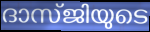
ദാസ്ജിയുടെ